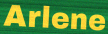
Arlene